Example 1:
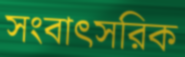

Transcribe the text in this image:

সংবাৎসরিক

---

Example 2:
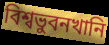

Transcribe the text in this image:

বিশ্বভুবনখানি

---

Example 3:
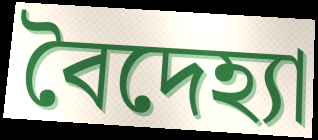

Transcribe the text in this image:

বৈদেহ্যা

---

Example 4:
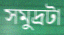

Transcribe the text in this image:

সমুদ্রটা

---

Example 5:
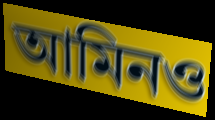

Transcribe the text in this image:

আমিনও